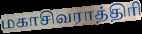
மகாசிவராத்திரி